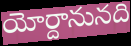
యోర్దానునది